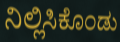
ನಿಲ್ಲಿಸಿಕೊಂಡು